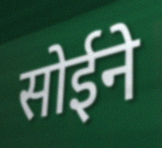
सोईने